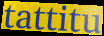
tattitu